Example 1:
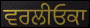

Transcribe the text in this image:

ਵਰਲੀਓਕਾ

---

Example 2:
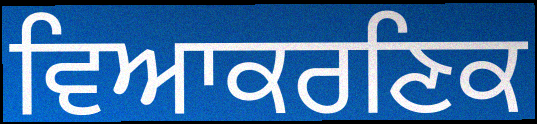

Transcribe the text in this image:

ਵਿਆਕਰਣਿਕ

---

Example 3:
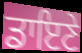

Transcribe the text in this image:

ਡਾਇਣੇ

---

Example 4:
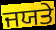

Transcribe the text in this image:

ਜਯਤੇ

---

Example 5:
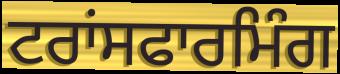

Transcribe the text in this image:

ਟਰਾਂਸਫਾਰਮਿੰਗ